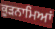
ਕੂੜਨਾਮਿਆਂ